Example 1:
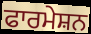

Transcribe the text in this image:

ਫਾਰਮੇਸ਼ਨ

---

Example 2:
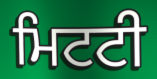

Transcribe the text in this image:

ਮਿਟਟੀ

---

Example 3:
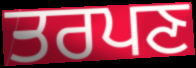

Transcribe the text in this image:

ਤਰਪਣ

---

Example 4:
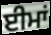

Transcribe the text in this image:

ਈਮਾਂ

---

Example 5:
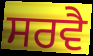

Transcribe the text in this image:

ਸਰਵੈ